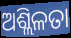
ଅଶ୍ଲିଳତା